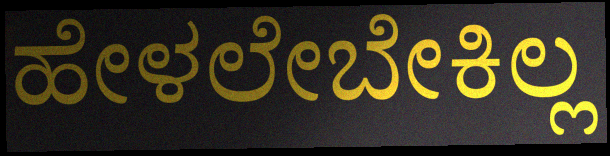
ಹೇಳಲೇಬೇಕಿಲ್ಲ